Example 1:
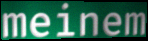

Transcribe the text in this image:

meinem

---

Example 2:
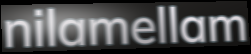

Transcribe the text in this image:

nilamellam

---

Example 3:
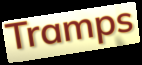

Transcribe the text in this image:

Tramps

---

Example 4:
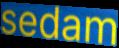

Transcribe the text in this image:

sedam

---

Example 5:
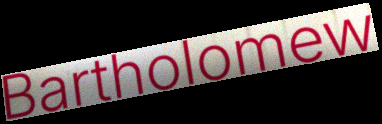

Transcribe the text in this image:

Bartholomew